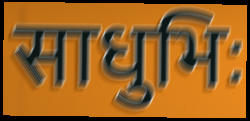
साधुभिः